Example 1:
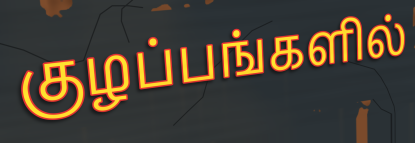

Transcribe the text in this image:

குழப்பங்களில்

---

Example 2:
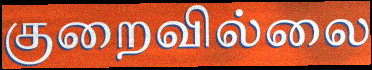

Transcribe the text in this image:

குறைவில்லை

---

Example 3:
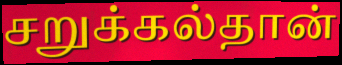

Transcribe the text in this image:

சறுக்கல்தான்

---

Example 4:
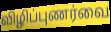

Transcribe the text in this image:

விழிப்புணர்வை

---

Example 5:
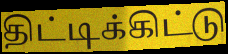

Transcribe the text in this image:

திட்டிக்கிட்டு